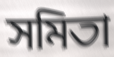
সমিতা